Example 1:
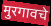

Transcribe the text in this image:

मुरगावचे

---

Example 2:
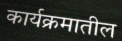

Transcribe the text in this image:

कार्यक्रमातील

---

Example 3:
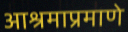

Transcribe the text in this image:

आश्रमाप्रमाणे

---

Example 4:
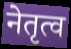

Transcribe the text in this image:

नेतृत्व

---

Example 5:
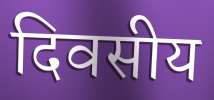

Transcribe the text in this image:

दिवसीय